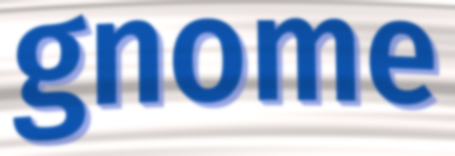
gnome